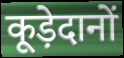
कूड़ेदानों